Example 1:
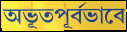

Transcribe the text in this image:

অভূতপূর্বভাবে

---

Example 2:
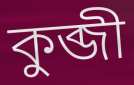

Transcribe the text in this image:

কুব্জী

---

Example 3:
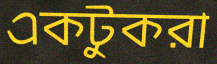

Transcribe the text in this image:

একটুকরা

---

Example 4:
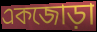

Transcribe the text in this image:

একজোড়া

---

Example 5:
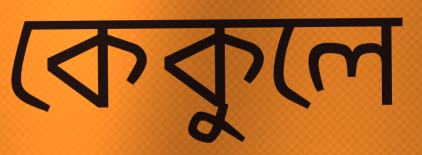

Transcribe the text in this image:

কেকুলে